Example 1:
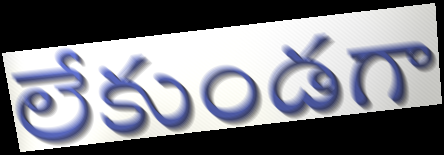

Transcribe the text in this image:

లేకుండగా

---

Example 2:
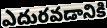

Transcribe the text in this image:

ఎదురవడానికి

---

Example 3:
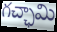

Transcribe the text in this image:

గచ్ఛామి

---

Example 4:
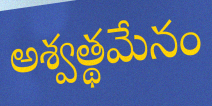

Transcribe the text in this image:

అశ్వత్థమేనం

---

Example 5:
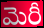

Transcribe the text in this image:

మెరీ